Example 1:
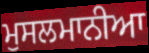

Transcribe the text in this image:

ਮੁਸਲਮਾਨੀਆ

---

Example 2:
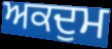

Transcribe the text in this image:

ਅਕਦੁਮ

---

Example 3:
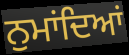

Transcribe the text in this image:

ਨੁਮਾਂਦਿਆਂ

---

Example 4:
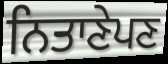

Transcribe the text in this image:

ਨਿਤਾਣੇਪਣ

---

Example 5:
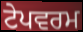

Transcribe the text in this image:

ਟੇਪਵਰਮ